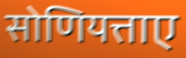
सोणियत्ताए